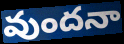
వుందనా